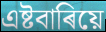
এষ্টবাৰিয়ে